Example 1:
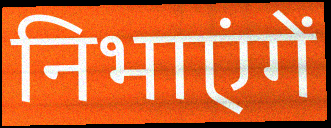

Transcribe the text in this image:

निभाएंगें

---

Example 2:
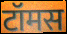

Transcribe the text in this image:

टॉमस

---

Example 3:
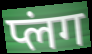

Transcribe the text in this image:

प्लंग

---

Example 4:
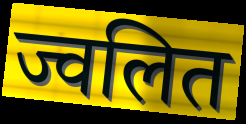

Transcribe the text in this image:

ज्वलित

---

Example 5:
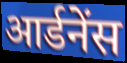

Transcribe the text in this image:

आर्डनेंस